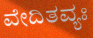
ವೇದಿತವ್ಯಃ